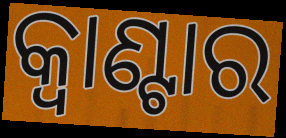
କ୍ୱାଣ୍ଟାର